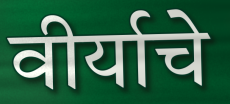
वीर्याचे